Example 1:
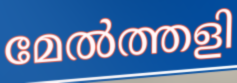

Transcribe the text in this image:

മേൽത്തളി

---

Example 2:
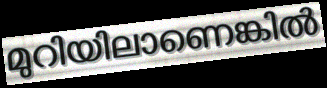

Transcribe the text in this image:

മുറിയിലാണെങ്കിൽ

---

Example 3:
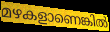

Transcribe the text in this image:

മഴകളാണെങ്കിൽ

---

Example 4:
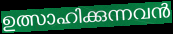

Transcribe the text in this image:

ഉത്സാഹിക്കുന്നവൻ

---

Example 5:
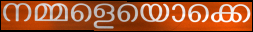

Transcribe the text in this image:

നമ്മളെയൊക്കെ